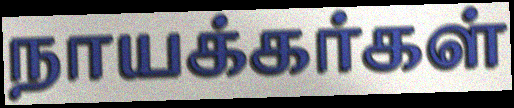
நாயக்கர்கள்